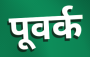
पूवर्क